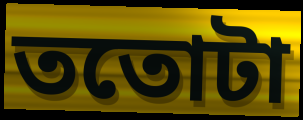
ততোটা